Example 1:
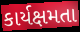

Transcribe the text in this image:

કાર્યક્ષમતા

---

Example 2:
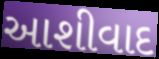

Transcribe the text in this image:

આશીવાદ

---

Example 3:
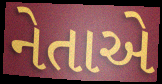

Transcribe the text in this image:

નેતાએ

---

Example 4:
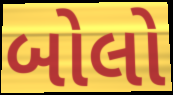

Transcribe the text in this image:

બોલો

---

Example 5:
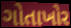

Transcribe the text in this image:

ગોતાખોર